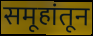
समूहांतून